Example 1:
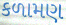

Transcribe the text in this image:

કળામણ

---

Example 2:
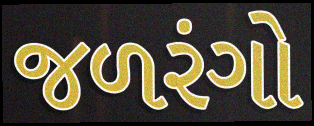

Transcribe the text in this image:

જળરંગો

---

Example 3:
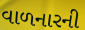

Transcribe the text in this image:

વાળનારની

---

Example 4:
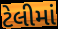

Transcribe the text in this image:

ટેલીમાં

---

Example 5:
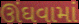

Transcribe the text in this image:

ઊંઘવામાં